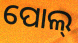
ପୋଲ୍